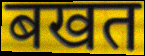
बखत